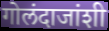
गोलंदाजांशी